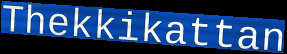
Thekkikattan